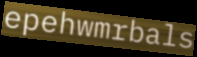
epehwmrbals